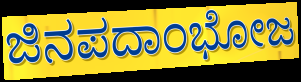
ಜಿನಪದಾಂಭೋಜ